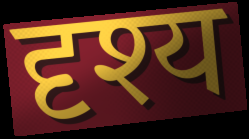
दृश्‍य